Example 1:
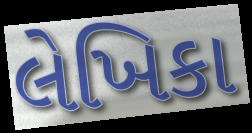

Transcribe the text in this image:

લેખિકા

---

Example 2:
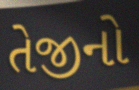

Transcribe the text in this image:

તેજીનો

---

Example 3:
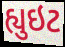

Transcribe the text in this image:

હ્યુઇટ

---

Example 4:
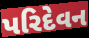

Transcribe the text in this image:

પરિદેવન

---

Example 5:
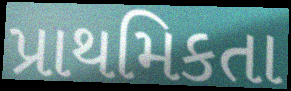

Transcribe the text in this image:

પ્રાથમિકતા